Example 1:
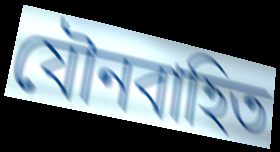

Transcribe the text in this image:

যৌনবাহিত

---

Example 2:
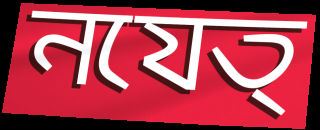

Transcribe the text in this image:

নযেত্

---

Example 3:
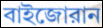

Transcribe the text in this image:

বাইজোরান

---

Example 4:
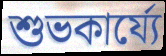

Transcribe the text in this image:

শুভকার্য্যে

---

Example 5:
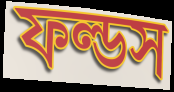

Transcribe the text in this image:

ফল্ডস